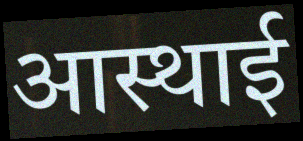
आस्थाई